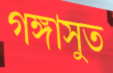
গঙ্গাসুত